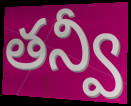
తన్వీ